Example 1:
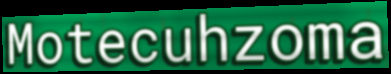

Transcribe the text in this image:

Motecuhzoma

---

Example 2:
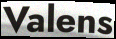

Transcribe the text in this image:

Valens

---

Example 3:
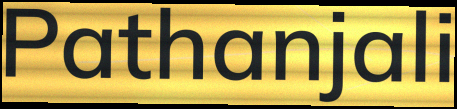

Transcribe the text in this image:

Pathanjali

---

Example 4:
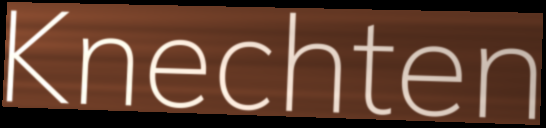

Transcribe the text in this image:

Knechten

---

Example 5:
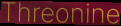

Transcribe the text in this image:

Threonine